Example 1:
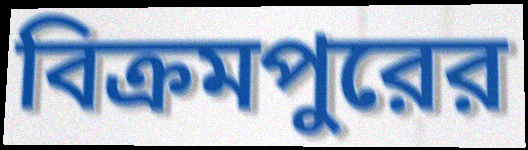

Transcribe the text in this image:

বিক্রমপুরের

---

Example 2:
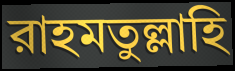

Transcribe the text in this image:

রাহমতুল্লাহি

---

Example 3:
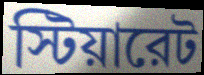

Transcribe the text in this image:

স্টিয়ারেট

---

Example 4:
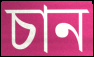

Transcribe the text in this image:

চান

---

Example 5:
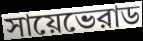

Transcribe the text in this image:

সায়েভেরাড